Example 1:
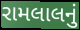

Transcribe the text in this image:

રામલાલનું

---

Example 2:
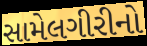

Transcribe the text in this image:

સામેલગીરીનો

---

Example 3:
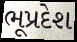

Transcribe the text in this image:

ભૂપ્રદેશ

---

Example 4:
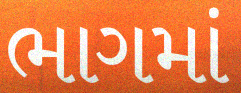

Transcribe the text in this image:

ભાગમાં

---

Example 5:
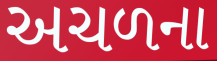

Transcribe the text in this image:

અચળના